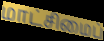
மாட்சிமைப்